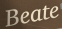
Beate